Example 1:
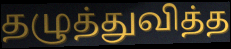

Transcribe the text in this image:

தழுத்துவித்த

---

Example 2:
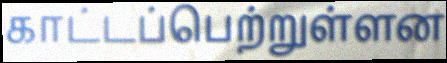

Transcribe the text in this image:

காட்டப்பெற்றுள்ளன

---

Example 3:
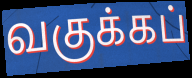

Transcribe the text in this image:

வகுக்கப்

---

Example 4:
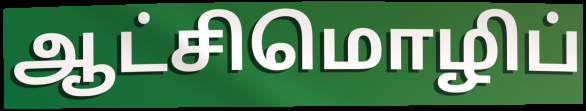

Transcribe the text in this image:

ஆட்சிமொழிப்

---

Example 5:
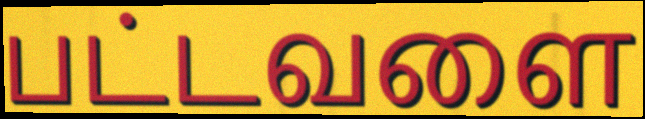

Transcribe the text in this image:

பட்டவளை